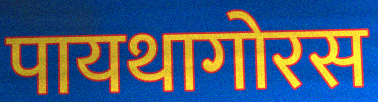
पायथागोरस